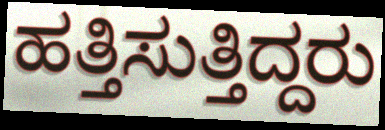
ಹತ್ತಿಸುತ್ತಿದ್ದರು